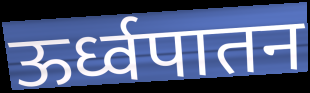
ऊर्ध्वपातन